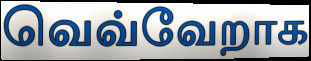
வெவ்வேறாக